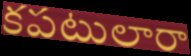
కపటులారా